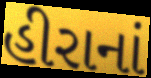
હીરાનાં